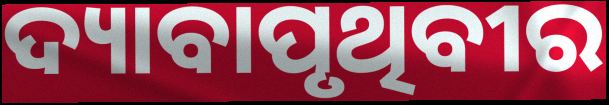
ଦ୍ୟାବାପୃଥିବୀର